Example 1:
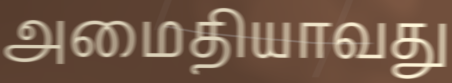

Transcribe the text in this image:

அமைதியாவது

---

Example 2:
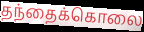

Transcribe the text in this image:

தந்தைக்கொலை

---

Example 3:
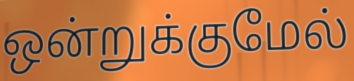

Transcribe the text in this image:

ஒன்றுக்குமேல்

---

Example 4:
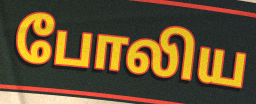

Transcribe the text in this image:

போலிய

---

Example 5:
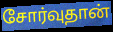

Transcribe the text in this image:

சோர்வுதான்